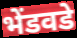
भेंडवडे